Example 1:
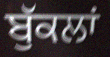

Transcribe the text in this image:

ਬੁੱਕਲਾਂ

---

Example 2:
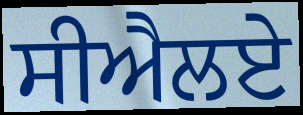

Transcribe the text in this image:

ਸੀਐਲਏ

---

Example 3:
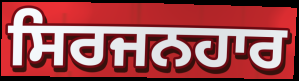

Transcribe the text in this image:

ਸਿਰਜਨਹਾਰ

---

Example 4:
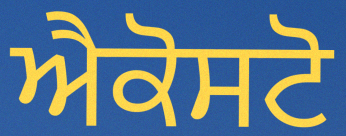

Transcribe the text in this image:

ਐਕੋਸਟੋ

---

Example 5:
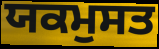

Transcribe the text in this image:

ਯਕਮੁਸਤ